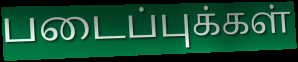
படைப்புக்கள்